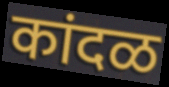
कांदळ